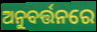
ଅନୁବର୍ତ୍ତନରେ